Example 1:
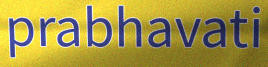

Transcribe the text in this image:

prabhavati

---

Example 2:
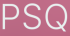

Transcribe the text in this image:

PSQ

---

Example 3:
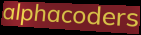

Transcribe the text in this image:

alphacoders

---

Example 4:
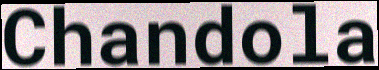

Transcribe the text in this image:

Chandola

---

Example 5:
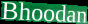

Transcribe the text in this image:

Bhoodan